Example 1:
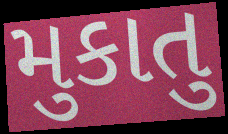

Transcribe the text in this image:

મુકાતુ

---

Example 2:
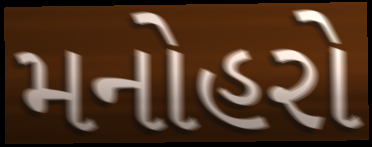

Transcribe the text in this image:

મનોહરો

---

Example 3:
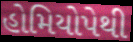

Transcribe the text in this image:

હોમિયોપેથી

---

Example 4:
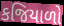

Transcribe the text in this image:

કજિયાળો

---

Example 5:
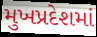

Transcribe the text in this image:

મુખપ્રદેશમાં